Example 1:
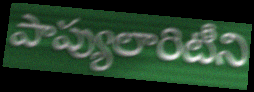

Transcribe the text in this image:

పాప్యులారిటీని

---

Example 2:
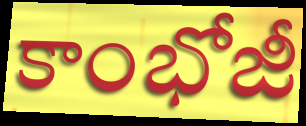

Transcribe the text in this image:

కాంభోజీ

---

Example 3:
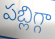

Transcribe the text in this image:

పబ్లిగ్గా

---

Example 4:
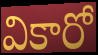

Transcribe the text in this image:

వికారో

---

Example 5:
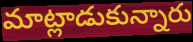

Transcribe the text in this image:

మాట్లాడుకున్నారు